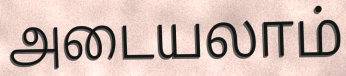
அடையலாம்